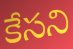
కేసని